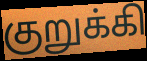
குறுக்கி